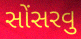
સોંસરવુ